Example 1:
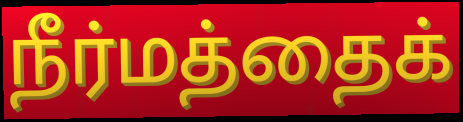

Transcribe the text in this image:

நீர்மத்தைக்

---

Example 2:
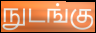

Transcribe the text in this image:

நுடங்கு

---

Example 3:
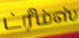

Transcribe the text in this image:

ட்ரீம்ஸ்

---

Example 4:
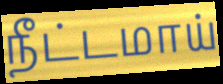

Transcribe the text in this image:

நீட்டமாய்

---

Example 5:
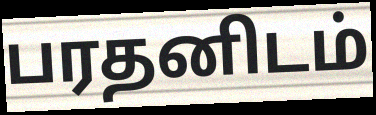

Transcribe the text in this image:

பரதனிடம்